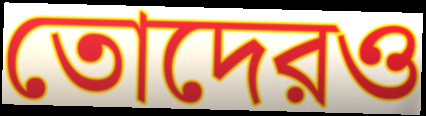
তোদেরও